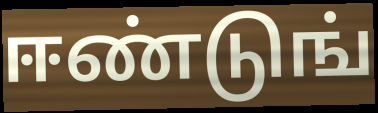
ஈண்டுங்